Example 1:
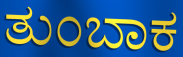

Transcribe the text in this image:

ತುಂಬಾಕ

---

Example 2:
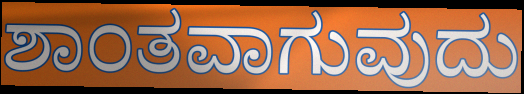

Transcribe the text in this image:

ಶಾಂತವಾಗುವುದು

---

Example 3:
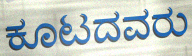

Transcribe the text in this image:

ಕೂಟದವರು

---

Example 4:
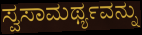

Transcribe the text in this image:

ಸ್ವಸಾಮರ್ಥ್ಯವನ್ನು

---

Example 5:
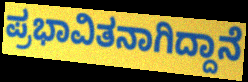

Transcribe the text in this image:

ಪ್ರಭಾವಿತನಾಗಿದ್ದಾನೆ